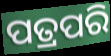
ପତ୍ରପରି